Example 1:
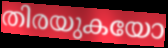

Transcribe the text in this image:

തിരയുകയോ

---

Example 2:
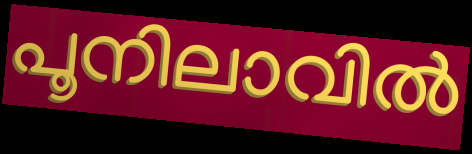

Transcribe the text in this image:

പൂനിലാവിൽ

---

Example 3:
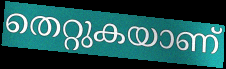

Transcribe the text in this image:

തെറ്റുകയാണ്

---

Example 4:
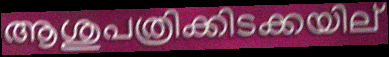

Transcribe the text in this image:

ആശുപത്രിക്കിടക്കയില്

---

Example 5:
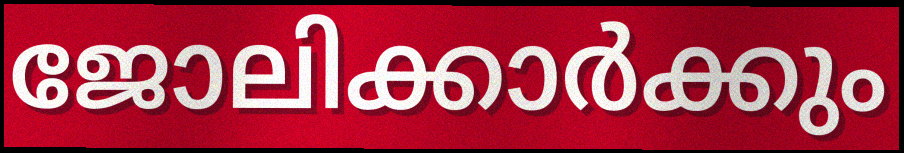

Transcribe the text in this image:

ജോലിക്കാർക്കും